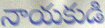
నాయకుడి